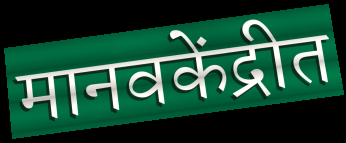
मानवकेंद्रीत